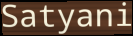
Satyani